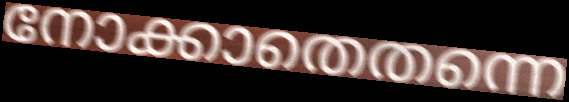
നോക്കാതെതന്നെ